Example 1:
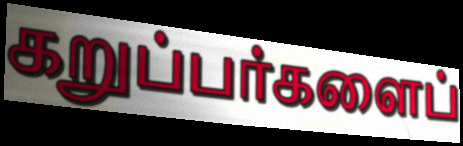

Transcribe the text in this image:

கறுப்பர்களைப்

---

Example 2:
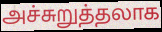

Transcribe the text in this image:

அச்சுறுத்தலாக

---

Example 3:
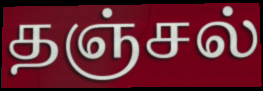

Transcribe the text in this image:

தஞ்சல்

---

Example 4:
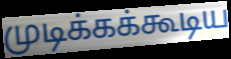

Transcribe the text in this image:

முடிக்கக்கூடிய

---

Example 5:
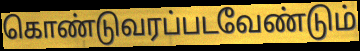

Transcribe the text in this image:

கொண்டுவரப்படவேண்டும்